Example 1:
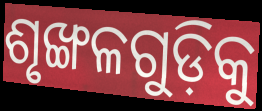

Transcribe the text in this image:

ଶୃଙ୍ଖଳଗୁଡ଼ିକୁ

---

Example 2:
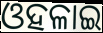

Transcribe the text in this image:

ଓହଳାଇ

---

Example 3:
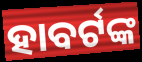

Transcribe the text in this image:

ହାବର୍ଟଙ୍କ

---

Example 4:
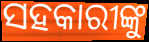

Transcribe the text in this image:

ସହକାରୀଙ୍କୁ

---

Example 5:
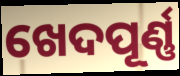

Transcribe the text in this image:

ଖେଦପୂର୍ଣ୍ଣ